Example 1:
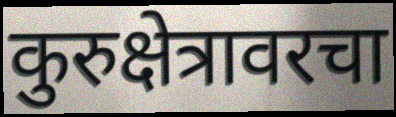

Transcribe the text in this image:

कुरुक्षेत्रावरचा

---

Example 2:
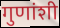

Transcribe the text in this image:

गुणांशी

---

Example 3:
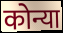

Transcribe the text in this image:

कोन्या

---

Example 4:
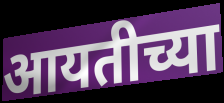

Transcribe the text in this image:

आयतीच्या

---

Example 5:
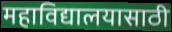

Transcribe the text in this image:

महाविद्यालयासाठी